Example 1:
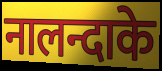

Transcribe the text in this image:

नालन्दाके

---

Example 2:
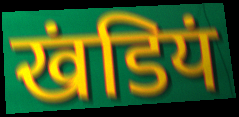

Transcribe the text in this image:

खंडियं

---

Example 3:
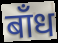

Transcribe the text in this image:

बाँध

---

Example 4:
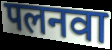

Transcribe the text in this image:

पलनवा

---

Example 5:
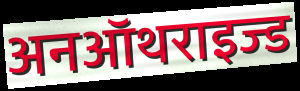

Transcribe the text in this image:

अनऑथराइज्ड